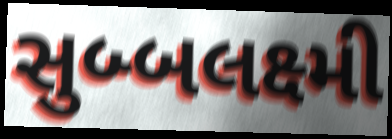
સુબ્બલક્ષ્મી